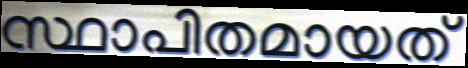
സ്ഥാപിതമായത്